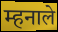
म्हनाले